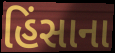
હિંસાના